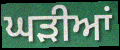
ਘੜੀਆਂ